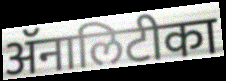
ॲनालिटीका